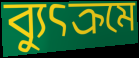
ব্যুৎক্রমে